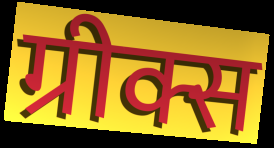
ग्रीक्स